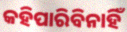
କହିପାରିବିନାହିଁ